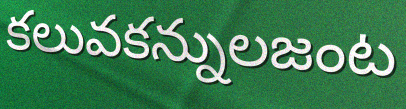
కలువకన్నులజంట